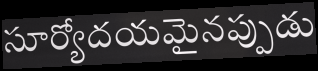
సూర్యోదయమైనప్పుడు